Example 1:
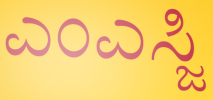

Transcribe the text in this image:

ಎಂಎಸ್ಜಿ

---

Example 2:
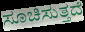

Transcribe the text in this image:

ಸೂಚಿಸುತ್ತದೆ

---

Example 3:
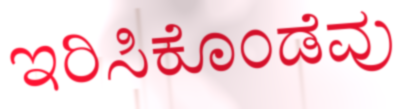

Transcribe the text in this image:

ಇರಿಸಿಕೊಂಡೆವು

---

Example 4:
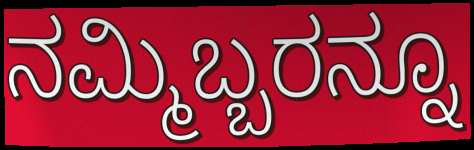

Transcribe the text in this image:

ನಮ್ಮಿಬ್ಬರನ್ನೂ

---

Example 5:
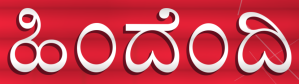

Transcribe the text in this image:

ಹಿಂದೆಂದಿ